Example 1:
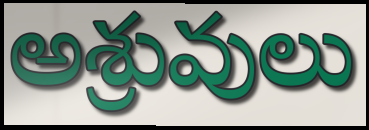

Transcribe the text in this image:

అశ్రువులు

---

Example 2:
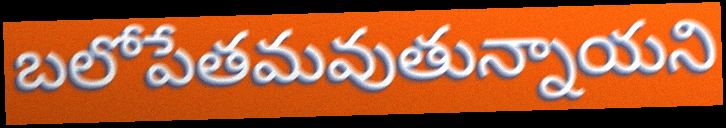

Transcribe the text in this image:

బలోపేతమవుతున్నాయని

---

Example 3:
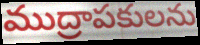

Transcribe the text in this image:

ముద్రాపకులను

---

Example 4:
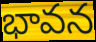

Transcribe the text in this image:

భావన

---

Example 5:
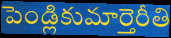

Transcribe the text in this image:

పెండ్లికుమార్తెరీతి